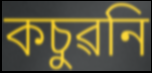
কচুৱনি